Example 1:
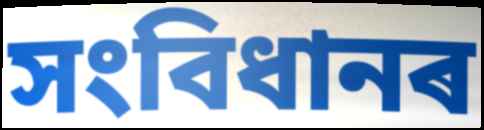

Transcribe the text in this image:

সংবিধানৰ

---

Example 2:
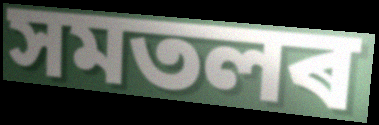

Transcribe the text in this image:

সমতলৰ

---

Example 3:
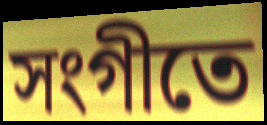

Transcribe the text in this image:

সংগীতে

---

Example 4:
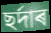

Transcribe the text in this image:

ছৰ্দাৰ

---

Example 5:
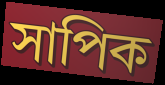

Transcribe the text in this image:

সাপিক